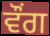
ਵੌਂਗ